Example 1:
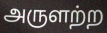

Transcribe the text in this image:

அருளற்ற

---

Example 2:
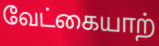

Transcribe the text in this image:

வேட்கையாற்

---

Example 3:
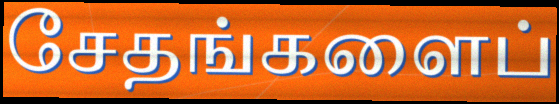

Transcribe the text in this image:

சேதங்களைப்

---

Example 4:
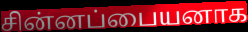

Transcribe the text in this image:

சின்னப்பையனாக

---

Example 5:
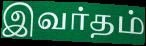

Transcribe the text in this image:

இவர்தம்